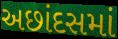
અછાંદસમાં